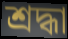
শ্ৰদ্ধা